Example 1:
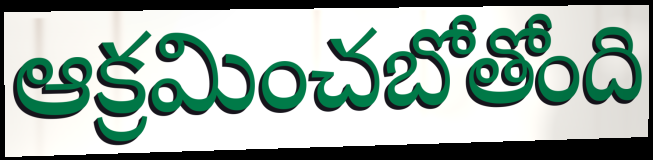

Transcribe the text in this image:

ఆక్రమించబోతోంది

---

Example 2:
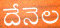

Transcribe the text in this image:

దేనెల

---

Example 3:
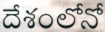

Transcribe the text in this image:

దేశంలోనో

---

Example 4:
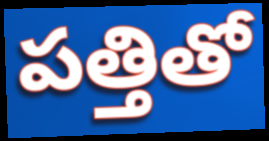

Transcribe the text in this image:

పత్తితో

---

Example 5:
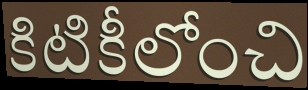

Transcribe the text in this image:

కిటికీలోంచి